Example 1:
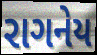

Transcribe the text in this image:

રાગનેય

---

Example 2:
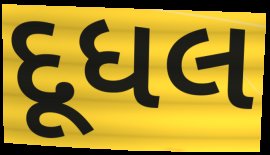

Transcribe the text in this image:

દૂધલ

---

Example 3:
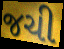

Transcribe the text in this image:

જચી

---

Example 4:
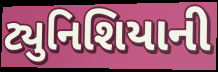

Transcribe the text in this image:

ટ્યુનિશિયાની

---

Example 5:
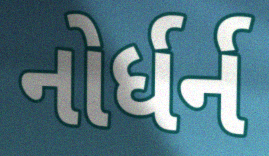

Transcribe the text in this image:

નોર્ધર્ન